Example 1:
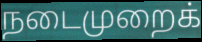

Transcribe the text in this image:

நடைமுறைக்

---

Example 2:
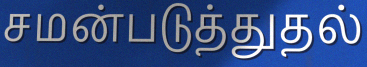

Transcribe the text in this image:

சமன்படுத்துதல்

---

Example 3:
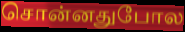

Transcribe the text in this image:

சொன்னதுபோல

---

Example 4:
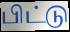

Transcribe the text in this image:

பிட்டு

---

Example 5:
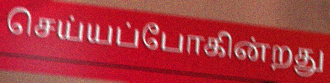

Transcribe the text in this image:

செய்யப்போகின்றது